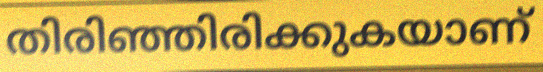
തിരിഞ്ഞിരിക്കുകയാണ്